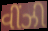
વીંઝી